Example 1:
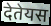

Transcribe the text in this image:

देतेयस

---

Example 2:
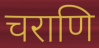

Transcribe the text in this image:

चराणि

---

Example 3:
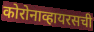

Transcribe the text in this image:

कोरोनाव्हायरसची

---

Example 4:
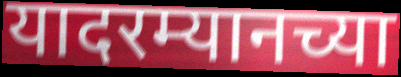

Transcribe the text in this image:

यादरम्यानच्या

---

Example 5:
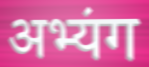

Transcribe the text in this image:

अभ्यंग